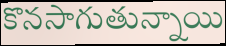
కొనసాగుతున్నాయి